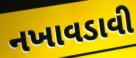
નખાવડાવી